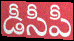
డీసీపీ